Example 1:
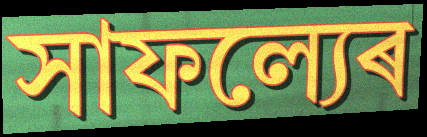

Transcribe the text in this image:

সাফল্যেৰ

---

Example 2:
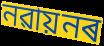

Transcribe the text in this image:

নৱায়নৰ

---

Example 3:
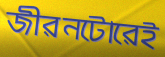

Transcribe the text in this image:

জীৱনটোৱেই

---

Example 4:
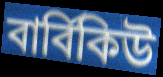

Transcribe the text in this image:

বাৰ্বিকিউ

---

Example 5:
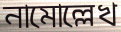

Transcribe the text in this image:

নামোল্লেখ